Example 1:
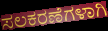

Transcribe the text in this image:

ಸಲಕರಣೆಗಳಾಗಿ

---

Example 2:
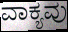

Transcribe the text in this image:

ವಾಕ್ಯವು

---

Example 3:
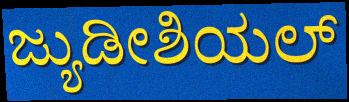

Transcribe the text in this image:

ಜ್ಯುಡೀಶಿಯಲ್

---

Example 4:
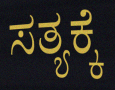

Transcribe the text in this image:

ಸತ್ಯಕ್ಕೆ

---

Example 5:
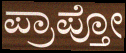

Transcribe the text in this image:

ಪ್ರಾಪ್ತೋ